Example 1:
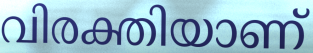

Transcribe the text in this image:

വിരക്തിയാണ്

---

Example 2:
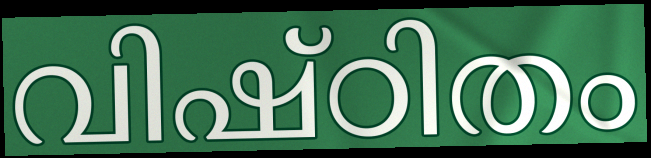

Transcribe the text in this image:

വിഷ്ഠിതം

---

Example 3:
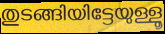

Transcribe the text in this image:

തുടങ്ങിയിട്ടേയുള്ളൂ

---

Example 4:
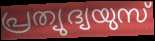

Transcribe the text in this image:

പ്രത്യുദ്യയുസ്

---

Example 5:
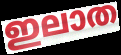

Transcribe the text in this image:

ഇലാത